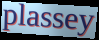
plassey